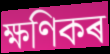
ক্ষণিকৰ